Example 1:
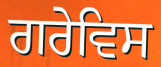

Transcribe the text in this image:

ਗਰੇਵਿਸ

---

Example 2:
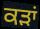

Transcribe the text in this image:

ਕੜਾਂ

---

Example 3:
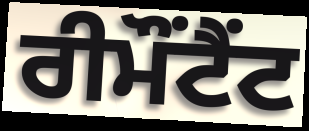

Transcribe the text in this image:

ਰੀਮੌਂਟੈਂਟ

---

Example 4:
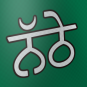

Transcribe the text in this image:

ਨੱਠੇ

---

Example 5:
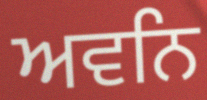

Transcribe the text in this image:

ਅਵਨਿ